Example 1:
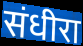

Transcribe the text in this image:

संधीरा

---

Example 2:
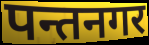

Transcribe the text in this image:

पन्तनगर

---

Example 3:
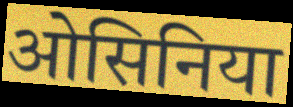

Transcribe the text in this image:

ओसिनिया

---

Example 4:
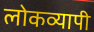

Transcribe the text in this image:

लोकव्यापी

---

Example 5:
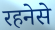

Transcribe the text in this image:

रहनेसे